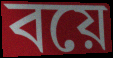
বয়ে